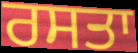
ਰਸਤਾ